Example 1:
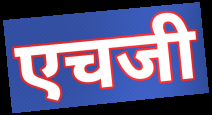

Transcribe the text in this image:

एचजी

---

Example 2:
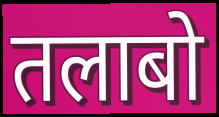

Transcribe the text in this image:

तलाबो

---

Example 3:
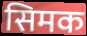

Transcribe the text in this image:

सिमक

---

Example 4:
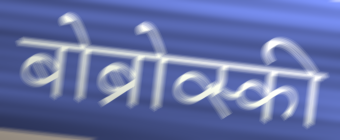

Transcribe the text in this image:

बोब्रोव्स्की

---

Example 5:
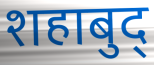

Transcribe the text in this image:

शहाबुद्